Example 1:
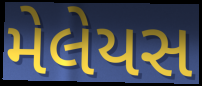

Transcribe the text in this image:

મેલેયસ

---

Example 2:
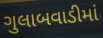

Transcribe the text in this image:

ગુલાબવાડીમાં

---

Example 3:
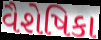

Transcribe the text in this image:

વૈશેષિકા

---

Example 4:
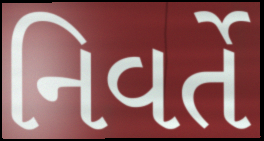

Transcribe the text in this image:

નિવર્તે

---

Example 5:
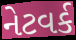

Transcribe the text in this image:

નેટવર્ક